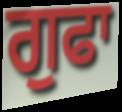
ਗੁਫਾ